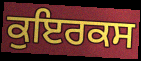
ਕੁਇਰਕਸ